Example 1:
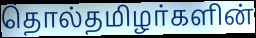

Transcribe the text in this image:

தொல்தமிழர்களின்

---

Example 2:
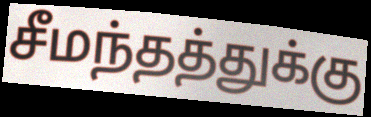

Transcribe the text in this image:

சீமந்தத்துக்கு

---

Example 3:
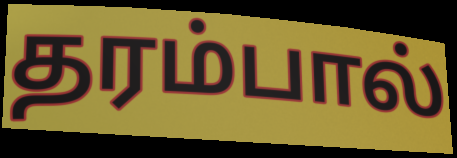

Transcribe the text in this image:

தரம்பால்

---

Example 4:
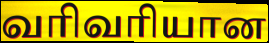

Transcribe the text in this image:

வரிவரியான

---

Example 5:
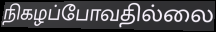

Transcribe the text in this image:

நிகழப்போவதில்லை